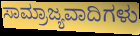
ಸಾಮ್ರಾಜ್ಯವಾದಿಗಳು